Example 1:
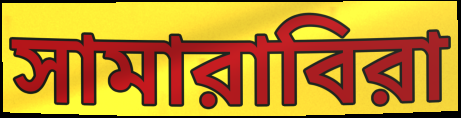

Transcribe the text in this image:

সামারাবিরা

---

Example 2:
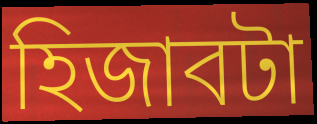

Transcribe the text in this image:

হিজাবটা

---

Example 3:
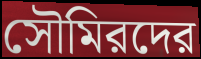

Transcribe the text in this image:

সৌমিরদের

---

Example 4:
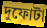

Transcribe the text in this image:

দুফোটা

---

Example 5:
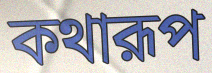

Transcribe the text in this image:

কথারূপ